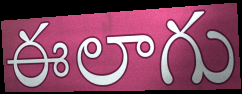
ఈలాగు